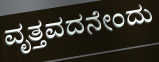
ವೃತ್ತವದನೇಂದು